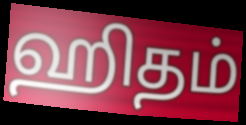
ஹிதம்